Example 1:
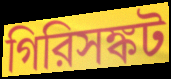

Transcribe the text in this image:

গিরিসঙ্কট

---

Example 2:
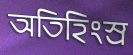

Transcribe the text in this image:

অতিহিংস্র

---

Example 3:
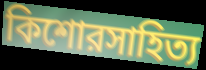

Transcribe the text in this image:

কিশোরসাহিত্য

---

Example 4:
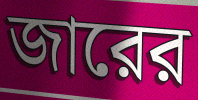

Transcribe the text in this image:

জারের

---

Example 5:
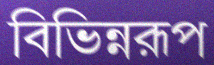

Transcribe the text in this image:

বিভিন্নরূপ